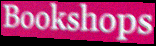
Bookshops